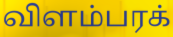
விளம்பரக்